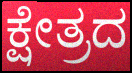
ಕ್ಷೇತ್ರದ